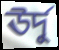
ঊর্দু